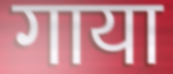
गाया